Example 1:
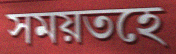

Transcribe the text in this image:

সময়তহে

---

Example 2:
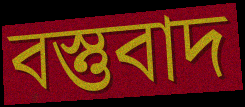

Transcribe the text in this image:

বস্তুবাদ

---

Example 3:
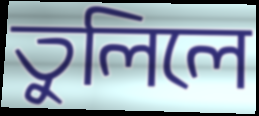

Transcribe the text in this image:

তুলিলে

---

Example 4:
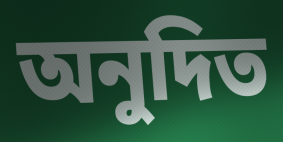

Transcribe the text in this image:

অনুদিত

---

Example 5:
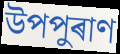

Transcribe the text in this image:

উপপুৰাণ